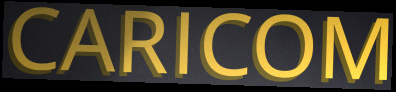
CARICOM